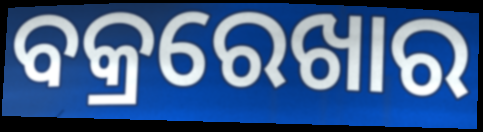
ବକ୍ରରେଖାର